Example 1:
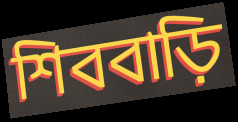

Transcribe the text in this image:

শিববাড়ি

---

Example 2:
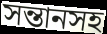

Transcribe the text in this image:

সন্তানসহ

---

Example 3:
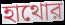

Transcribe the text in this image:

হাথোর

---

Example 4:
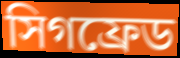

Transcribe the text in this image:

সিগফ্রেড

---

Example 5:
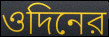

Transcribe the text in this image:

ওদিনের